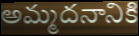
అమ్మదనానికి